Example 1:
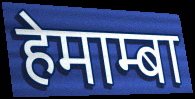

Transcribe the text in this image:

हेमाम्बा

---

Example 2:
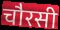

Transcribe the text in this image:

चौरसी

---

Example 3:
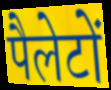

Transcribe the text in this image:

पैलेटों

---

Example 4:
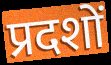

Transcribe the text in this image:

प्रदशों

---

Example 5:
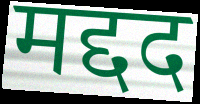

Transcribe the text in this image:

मद्दद